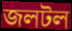
জলটল